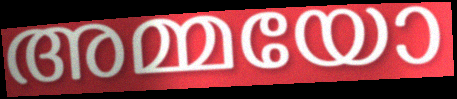
അമ്മയോ